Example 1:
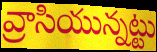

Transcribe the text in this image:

వ్రాసియున్నట్టు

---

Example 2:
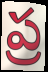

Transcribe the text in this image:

ప్ర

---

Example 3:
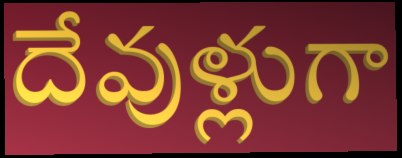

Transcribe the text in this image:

దేవుళ్లుగా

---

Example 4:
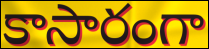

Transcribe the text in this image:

కాసారంగా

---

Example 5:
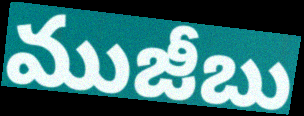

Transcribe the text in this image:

ముజీబు